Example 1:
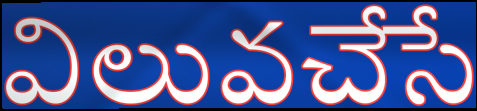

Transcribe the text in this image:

విలువచేసే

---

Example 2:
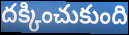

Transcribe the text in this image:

దక్కించుకుంది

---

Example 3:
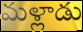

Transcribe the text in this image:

మళ్లాడు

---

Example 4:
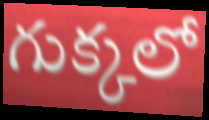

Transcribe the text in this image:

గుక్కలో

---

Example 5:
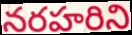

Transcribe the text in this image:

నరహరిని